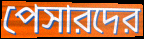
পেসারদের